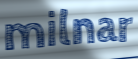
milnar